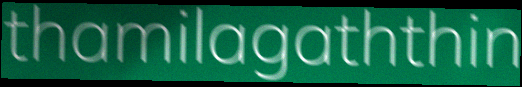
thamilagaththin